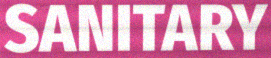
SANITARY